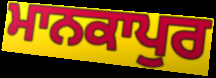
ਮਾਨਕਾਪੁਰ